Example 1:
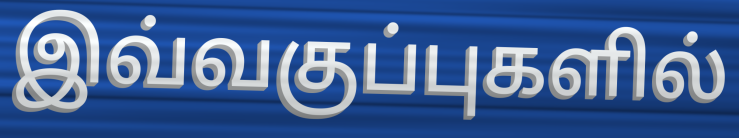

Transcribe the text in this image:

இவ்வகுப்புகளில்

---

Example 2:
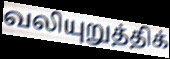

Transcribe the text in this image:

வலியுறுத்திக்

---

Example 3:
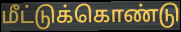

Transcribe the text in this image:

மீட்டுக்கொண்டு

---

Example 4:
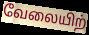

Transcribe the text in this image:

வேலையிற்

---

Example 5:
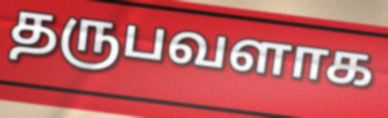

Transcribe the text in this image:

தருபவளாக